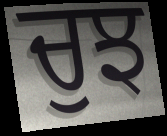
ਚੁਝ